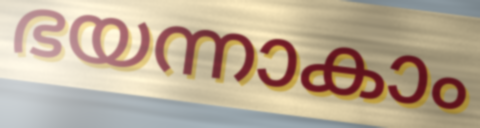
ഭയന്നാകാം